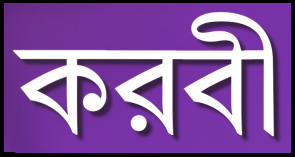
করবী